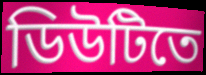
ডিউটিতে